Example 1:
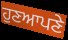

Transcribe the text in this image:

ਹੁਣਆਪਣੇ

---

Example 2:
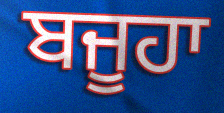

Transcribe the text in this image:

ਬਜੂਹਾ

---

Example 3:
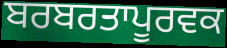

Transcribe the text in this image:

ਬਰਬਰਤਾਪੂਰਵਕ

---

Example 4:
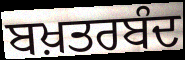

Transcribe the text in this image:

ਬਖ਼ਤਰਬੰਦ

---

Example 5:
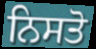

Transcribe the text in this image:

ਨਿਸਤੋ